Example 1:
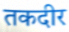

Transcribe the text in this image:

तकदीर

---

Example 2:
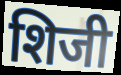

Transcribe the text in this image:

शिजी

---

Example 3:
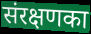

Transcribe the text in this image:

संरक्षणका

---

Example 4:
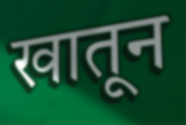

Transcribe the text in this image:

खातून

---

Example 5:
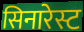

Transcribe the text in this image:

सिनारेस्ट